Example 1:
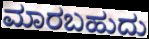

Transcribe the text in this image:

ಮಾರಬಹುದು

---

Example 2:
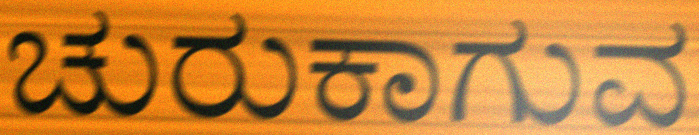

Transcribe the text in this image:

ಚುರುಕಾಗುವ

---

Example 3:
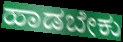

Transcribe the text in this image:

ಹಾಡಬೇಕು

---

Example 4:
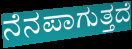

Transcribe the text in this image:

ನೆನಪಾಗುತ್ತದೆ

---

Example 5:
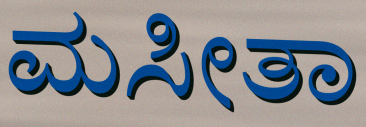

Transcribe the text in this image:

ಮಸೀತಾ